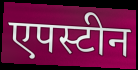
एपस्टीन